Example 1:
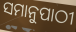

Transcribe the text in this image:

ସମାନୁପାଠୀ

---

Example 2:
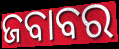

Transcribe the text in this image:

ଜବାବର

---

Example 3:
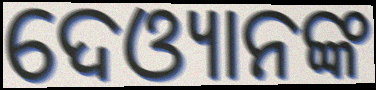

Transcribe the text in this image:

ଦେଓ୍ୟାନଙ୍କ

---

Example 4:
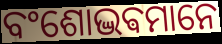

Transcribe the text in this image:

ବଂଶୋଦ୍ଭଵମାନେ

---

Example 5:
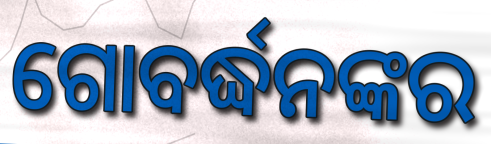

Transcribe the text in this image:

ଗୋବର୍ଦ୍ଧନଙ୍କର